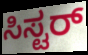
ಸಿಸ್ಟರ್